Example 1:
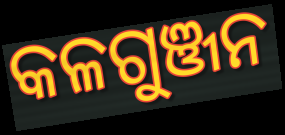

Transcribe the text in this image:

କଳଗୁଞ୍ଜନ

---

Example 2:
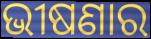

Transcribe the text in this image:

ଭୀଷଣାର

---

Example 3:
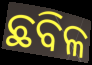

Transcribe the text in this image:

ଛବିଳ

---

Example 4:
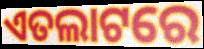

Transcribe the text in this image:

ଏତଲାଟରେ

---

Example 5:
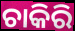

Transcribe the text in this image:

ଚାକିରି